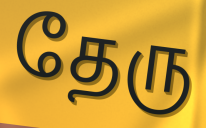
தேரு